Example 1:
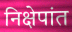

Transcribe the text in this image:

निक्षेपांत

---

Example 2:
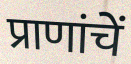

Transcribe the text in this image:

प्राणांचें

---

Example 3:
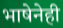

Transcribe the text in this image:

भाषेनेही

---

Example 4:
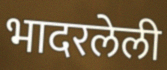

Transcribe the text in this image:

भादरलेली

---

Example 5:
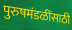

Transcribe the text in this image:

पुरुषमंडळींसाठी